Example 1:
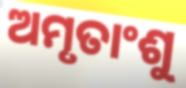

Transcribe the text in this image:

ଅମୃତାଂଶୁ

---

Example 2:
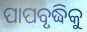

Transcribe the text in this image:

ପାପବୃଦ୍ଧିକୁ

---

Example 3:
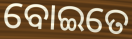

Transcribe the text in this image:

ବୋଇତେ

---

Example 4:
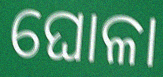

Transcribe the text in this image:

ଘୋଳା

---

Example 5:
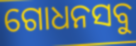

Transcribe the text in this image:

ଗୋଧନସବୁ